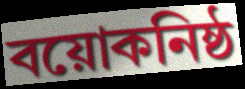
বয়োকনিষ্ঠ